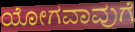
ಯೋಗವಾವುಗೆ